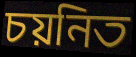
চয়নিত